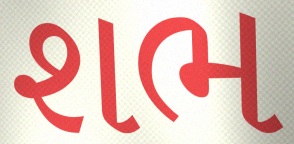
શભ